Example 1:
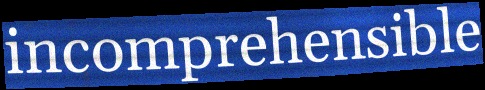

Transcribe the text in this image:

incomprehensible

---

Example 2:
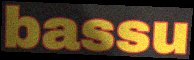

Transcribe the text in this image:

bassu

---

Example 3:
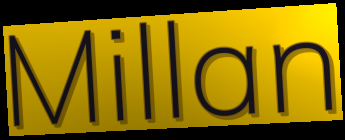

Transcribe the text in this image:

Millan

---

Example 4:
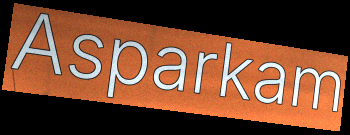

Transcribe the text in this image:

Asparkam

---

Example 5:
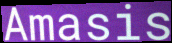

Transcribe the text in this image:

Amasis